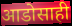
आडोसाही